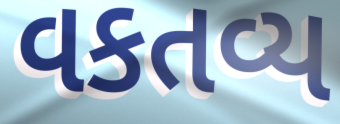
વકતવ્ય